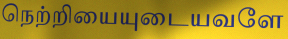
நெற்றியையுடையவளே